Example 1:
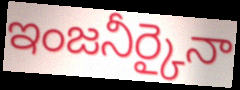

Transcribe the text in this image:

ఇంజనీర్కైనా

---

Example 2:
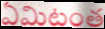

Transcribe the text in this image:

ఏమిటంత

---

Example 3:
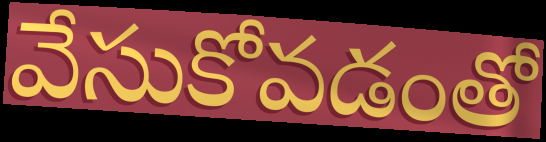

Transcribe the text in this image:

వేసుకోవడంతో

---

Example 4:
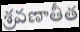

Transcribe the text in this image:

శ్రవణాతీత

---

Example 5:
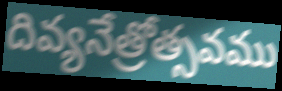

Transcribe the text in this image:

దివ్యనేత్రోత్సవము